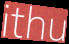
ithu